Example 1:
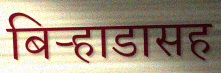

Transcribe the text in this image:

बिऱ्हाडासह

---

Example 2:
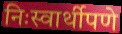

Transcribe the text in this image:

निःस्वार्थीपणे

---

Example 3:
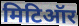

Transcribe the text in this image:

मिटिऑर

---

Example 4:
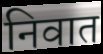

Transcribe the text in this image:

निवात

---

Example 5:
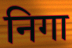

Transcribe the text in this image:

निगा